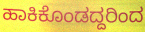
ಹಾಕಿಕೊಂಡದ್ದರಿಂದ